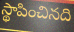
స్థాపించినది